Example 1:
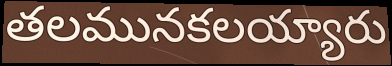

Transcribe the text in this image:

తలమునకలయ్యారు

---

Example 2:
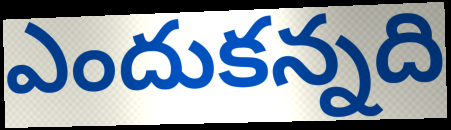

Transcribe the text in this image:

ఎందుకన్నది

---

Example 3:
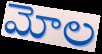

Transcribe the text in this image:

మోల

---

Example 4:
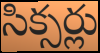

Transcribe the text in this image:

సిక్సర్లు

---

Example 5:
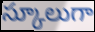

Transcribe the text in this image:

స్కూలుగా